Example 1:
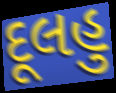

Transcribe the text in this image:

દૂલહુ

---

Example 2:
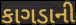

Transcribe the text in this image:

કાગડાની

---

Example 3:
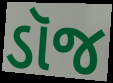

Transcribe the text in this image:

ડૉજ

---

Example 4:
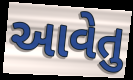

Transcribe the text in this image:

આવેતુ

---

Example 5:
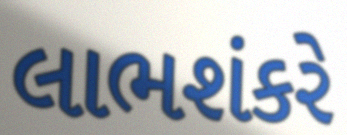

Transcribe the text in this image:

લાભશંકરે